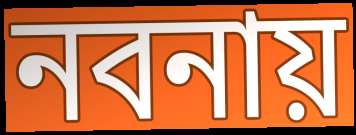
নবনায়